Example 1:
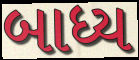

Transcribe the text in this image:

બાધ્ય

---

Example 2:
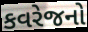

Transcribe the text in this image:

કવરેજનો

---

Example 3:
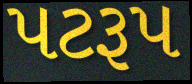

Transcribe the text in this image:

પટરૂપ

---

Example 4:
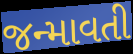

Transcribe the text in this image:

જન્માવતી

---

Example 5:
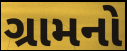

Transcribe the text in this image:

ગ્રામનો